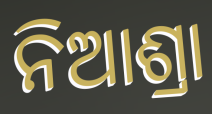
ନିଆଶ୍ରା